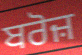
ਬਰੋਜ਼